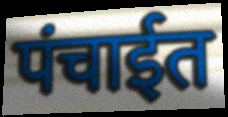
पंचाईत